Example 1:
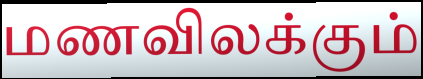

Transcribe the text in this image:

மணவிலக்கும்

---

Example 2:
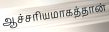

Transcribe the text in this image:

ஆச்சரியமாகத்தான்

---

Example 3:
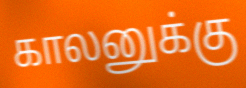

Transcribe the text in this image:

காலனுக்கு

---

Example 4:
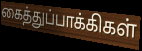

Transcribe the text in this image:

கைத்துப்பாக்கிகள்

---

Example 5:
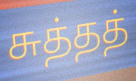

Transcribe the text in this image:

சுத்தத்